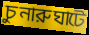
চুনারুঘাটে